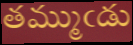
తమ్ముఁడు